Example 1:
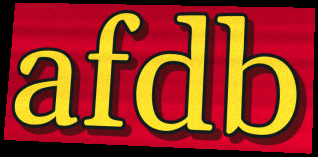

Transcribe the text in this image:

afdb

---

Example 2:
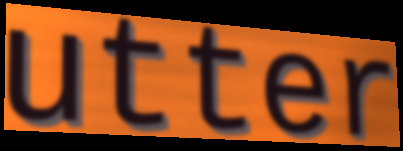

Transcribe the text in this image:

utter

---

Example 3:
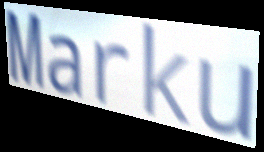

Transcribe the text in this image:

Marku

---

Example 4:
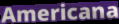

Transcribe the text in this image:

Americana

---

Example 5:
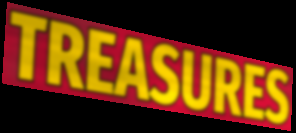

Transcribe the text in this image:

TREASURES